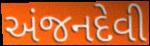
અંજનદેવી